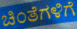
ಚಿಂತೆಗಳಿಗೆ